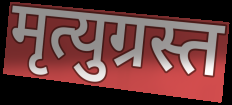
मृत्युग्रस्त